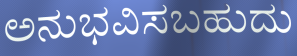
ಅನುಭವಿಸಬಹುದು